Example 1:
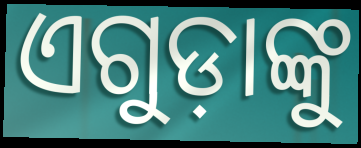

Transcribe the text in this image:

ଏଗୁଡ଼ାଙ୍କୁ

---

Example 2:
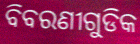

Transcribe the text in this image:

ବିବରଣୀଗୁଡିକ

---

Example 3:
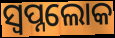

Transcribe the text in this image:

ସ୍ଵପ୍ନଲୋକ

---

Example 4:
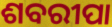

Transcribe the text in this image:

ଶବରୀପା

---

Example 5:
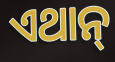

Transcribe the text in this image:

ଏଥାନ୍